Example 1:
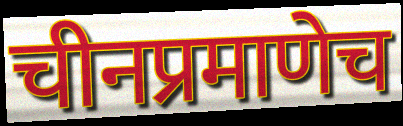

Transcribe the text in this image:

चीनप्रमाणेच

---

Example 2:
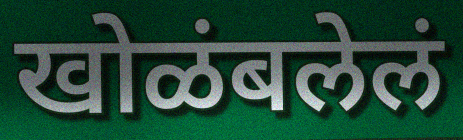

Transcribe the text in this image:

खोळंबलेलं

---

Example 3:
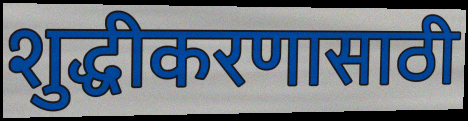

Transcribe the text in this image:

शुद्धीकरणासाठी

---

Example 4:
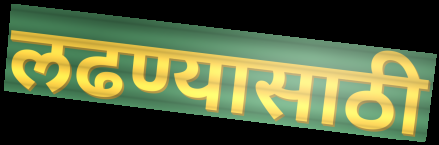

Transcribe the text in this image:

लढण्यासाठी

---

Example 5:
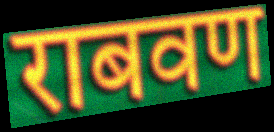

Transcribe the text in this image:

राबवण